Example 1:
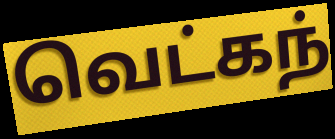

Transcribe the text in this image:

வெட்கந்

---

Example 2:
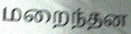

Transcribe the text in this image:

மறைந்தன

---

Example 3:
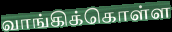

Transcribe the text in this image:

வாங்கிக்கொள்ள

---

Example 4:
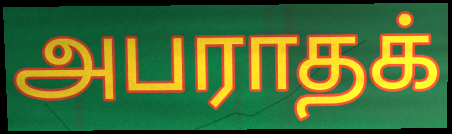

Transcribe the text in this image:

அபராதக்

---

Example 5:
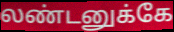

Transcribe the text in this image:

லண்டனுக்கே